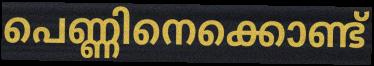
പെണ്ണിനെക്കൊണ്ട്